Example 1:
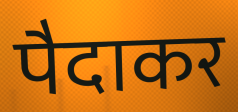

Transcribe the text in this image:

पैदाकर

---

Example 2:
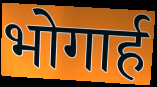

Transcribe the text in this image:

भोगार्ह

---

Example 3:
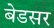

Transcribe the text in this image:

बेडसर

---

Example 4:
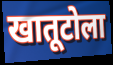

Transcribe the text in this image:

खातूटोला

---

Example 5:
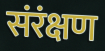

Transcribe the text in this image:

संरंक्षण